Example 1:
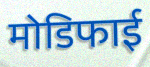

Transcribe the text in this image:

मोडिफाई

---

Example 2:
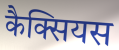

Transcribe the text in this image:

कैक्सियस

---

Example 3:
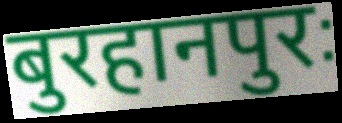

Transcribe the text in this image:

बुरहानपुरः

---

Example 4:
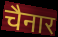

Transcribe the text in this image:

चैनार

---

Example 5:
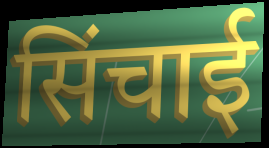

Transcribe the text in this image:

सिंचाई